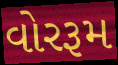
વોરરૂમ